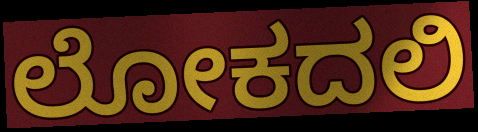
ಲೋಕದಲಿ